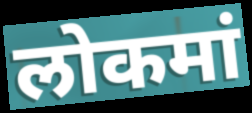
लोकमां